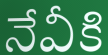
నేవీకి